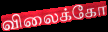
விலைக்கோ